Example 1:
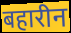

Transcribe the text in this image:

बहारीन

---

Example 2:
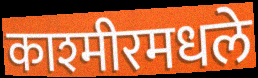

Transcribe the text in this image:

काश्‍मीरमधले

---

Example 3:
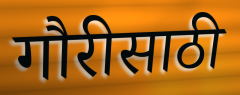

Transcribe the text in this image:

गौरीसाठी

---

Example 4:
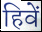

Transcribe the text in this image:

हिवें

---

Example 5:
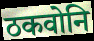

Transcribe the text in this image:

ठकवोनि